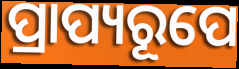
ପ୍ରାପ୍ୟରୂପେ